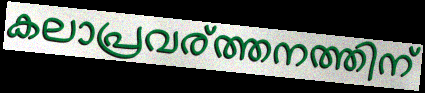
കലാപ്രവര്ത്തനത്തിന്